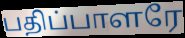
பதிப்பாளரே